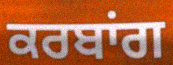
ਕਰਬਾਂਗ